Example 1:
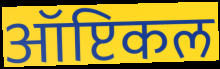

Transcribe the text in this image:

ऑप्टिकल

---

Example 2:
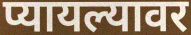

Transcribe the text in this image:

प्यायल्यावर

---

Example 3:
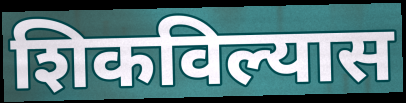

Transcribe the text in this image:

शिकविल्यास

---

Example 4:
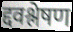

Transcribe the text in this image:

द्दवश्लेषण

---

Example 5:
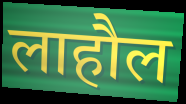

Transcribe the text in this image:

लाहौल